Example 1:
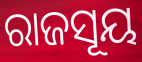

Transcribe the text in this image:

ରାଜସୂୟ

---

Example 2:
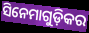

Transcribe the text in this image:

ସିନେମାଗୁଡ଼ିକର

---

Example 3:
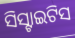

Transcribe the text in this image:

ସିସ୍ଟାଇଟିସ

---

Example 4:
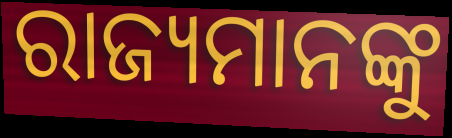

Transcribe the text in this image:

ରାଜ୍ଯମାନଙ୍କୁ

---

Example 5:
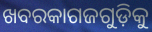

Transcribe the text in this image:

ଖବରକାଗଜଗୁଡ଼ିକୁ